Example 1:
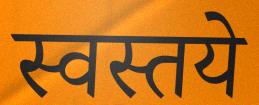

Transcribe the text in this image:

स्वस्तये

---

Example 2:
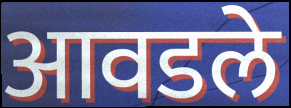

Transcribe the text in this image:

आवडले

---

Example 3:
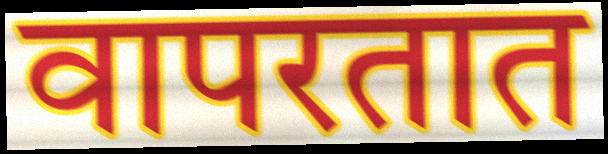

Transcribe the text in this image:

वापरतात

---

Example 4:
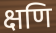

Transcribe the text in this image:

क्षणि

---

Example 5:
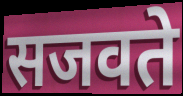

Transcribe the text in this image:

सजवते